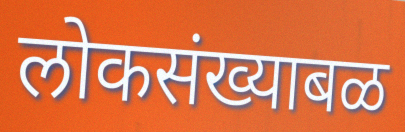
लोकसंख्याबळ